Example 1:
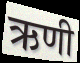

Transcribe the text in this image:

ऋणी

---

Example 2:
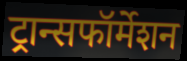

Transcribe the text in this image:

ट्रान्सफॉर्मेशन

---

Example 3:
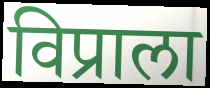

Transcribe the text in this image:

विप्राला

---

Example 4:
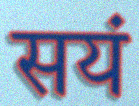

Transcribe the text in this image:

सयं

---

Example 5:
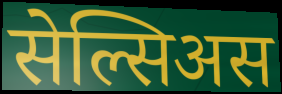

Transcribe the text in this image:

सेल्सिअस